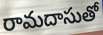
రామదాసుతో